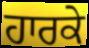
ਹਾਰਕੇ